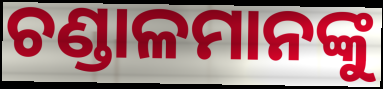
ଚଣ୍ଡାଳମାନଙ୍କୁ